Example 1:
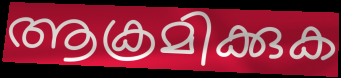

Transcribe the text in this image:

ആക്രമിക്കുക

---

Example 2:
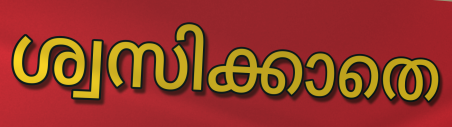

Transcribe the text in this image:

ശ്വസിക്കാതെ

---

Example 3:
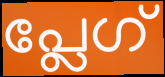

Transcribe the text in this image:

പ്ലേഗ്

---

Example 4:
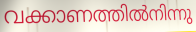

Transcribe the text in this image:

വക്കാണത്തിൽനിന്നു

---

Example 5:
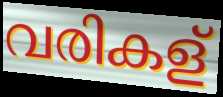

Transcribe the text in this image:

വരികള്